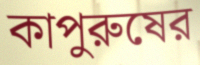
কাপুরুষের